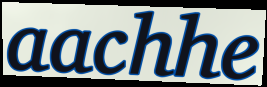
aachhe